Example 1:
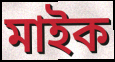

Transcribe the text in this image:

মাইক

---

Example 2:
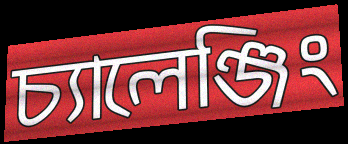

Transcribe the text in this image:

চ্যালেঞ্জিং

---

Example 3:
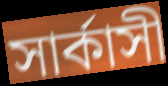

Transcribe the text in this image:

সার্কাসী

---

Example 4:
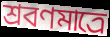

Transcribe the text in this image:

শ্রবণমাত্রে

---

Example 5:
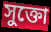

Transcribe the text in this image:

সুক্তো